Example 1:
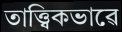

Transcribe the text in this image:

তাত্ত্বিকভাৱে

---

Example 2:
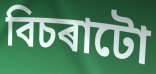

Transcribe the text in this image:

বিচৰাটো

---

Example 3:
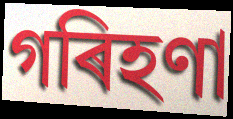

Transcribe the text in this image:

গৰিহণা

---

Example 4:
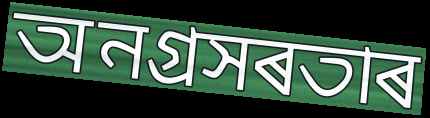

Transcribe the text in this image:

অনগ্ৰসৰতাৰ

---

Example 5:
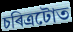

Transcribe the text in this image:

চৰিত্ৰটোত